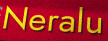
Neralu